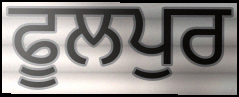
ਫੂਲਪੁਰ